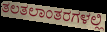
ತಲತಲಾಂತರಗಳಲ್ಲಿ